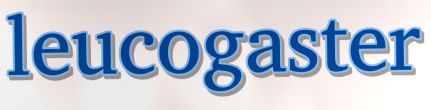
leucogaster